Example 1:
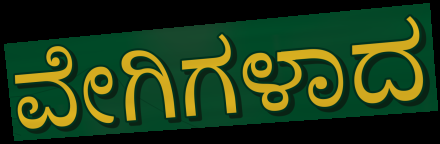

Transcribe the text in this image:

ವೇಗಿಗಳಾದ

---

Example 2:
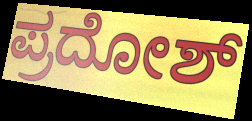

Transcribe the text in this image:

ಪ್ರದೋಶ್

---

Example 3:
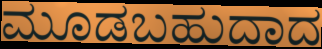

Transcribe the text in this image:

ಮೂಡಬಹುದಾದ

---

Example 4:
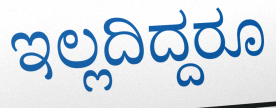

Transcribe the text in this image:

ಇಲ್ಲದಿದ್ದರೂ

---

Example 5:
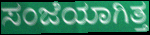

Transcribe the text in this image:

ಸಂಜೆಯಾಗಿತ್ತ